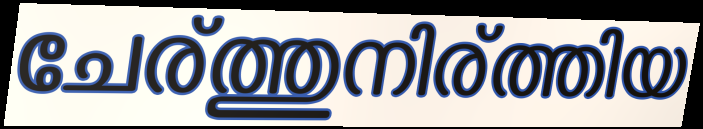
ചേര്ത്തുനിര്ത്തിയ